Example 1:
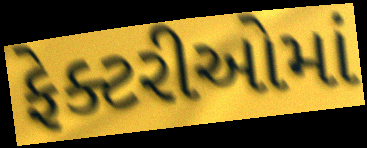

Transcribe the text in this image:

ફેક્ટરીઓમાં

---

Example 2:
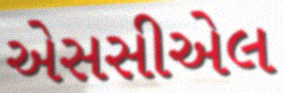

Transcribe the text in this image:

એસસીએલ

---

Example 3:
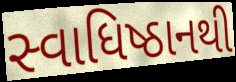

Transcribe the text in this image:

સ્વાધિષ્ઠાનથી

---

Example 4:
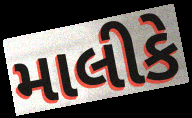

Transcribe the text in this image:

માલીકે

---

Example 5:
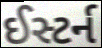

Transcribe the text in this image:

ઈસ્ટર્ન